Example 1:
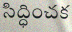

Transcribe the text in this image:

సిద్ధించక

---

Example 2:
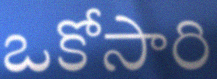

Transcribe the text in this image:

ఒకోసారి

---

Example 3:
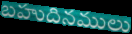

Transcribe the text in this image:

బహుదినములు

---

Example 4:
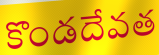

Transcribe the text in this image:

కొండదేవత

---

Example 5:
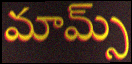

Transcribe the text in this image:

మామ్స్